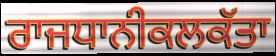
ਰਾਜਧਾਨੀਕਲਕੱਤਾ